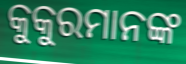
କୁକୁରମାନଙ୍କ